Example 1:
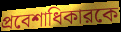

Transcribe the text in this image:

প্রবেশাধিকারকে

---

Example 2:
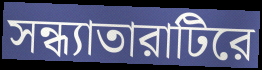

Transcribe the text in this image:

সন্ধ্যাতারাটিরে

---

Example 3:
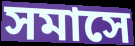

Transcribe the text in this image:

সমাসে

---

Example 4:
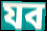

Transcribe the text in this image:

যব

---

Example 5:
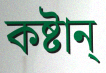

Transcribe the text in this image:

কষ্টান্